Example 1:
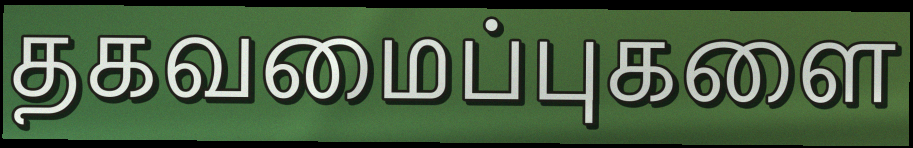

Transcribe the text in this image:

தகவமைப்புகளை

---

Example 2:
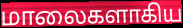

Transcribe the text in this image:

மாலைகளாகிய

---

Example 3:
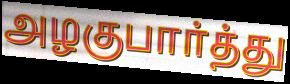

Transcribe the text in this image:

அழகுபார்த்து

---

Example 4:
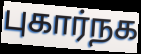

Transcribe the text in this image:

புகார்நக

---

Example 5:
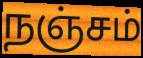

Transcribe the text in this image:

நஞ்சம்